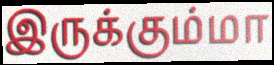
இருக்கும்மா